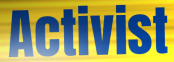
Activist